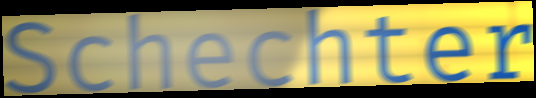
Schechter